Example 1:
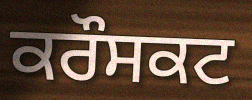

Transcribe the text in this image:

ਕਰੌਸਕਟ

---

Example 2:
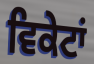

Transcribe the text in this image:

ਵਿਕੇਟਾਂ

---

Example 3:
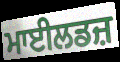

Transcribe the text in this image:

ਮਾਈਲਡਜ਼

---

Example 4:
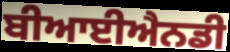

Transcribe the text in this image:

ਬੀਆਈਐਨਡੀ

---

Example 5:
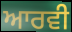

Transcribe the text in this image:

ਆਰਵੀ